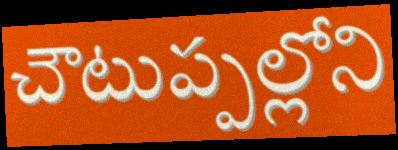
చౌటుప్పల్లోని